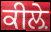
ਕੀਲ਼ੇ